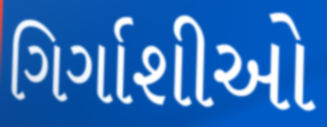
ગિર્ગાશીઓ